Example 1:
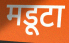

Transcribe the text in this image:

मडूटा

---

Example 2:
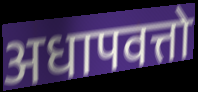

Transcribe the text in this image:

अधापवत्तो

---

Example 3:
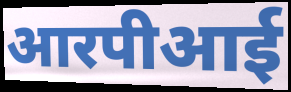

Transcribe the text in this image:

आरपीआई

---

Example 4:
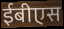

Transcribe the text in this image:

ईबीएस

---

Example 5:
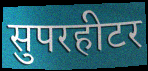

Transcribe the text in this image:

सुपरहीटर